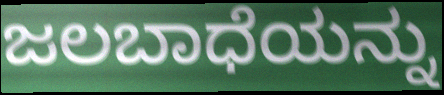
ಜಲಬಾಧೆಯನ್ನು